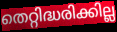
തെറ്റിദ്ധരിക്കില്ല